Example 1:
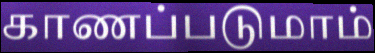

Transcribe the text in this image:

காணப்படுமாம்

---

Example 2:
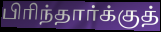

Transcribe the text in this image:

பிரிந்தார்க்குத்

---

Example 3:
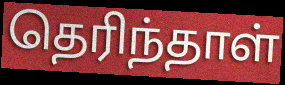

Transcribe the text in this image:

தெரிந்தாள்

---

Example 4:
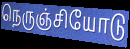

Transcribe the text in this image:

நெருஞ்சியோடு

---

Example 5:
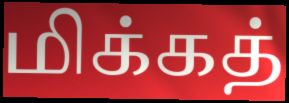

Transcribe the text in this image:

மிக்கத்